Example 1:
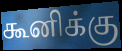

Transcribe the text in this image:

கூனிக்கு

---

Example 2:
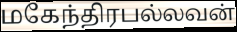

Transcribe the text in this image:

மகேந்திரபல்லவன்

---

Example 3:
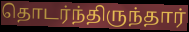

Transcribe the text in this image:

தொடர்ந்திருந்தார்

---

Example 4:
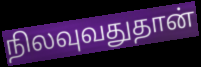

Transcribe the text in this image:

நிலவுவதுதான்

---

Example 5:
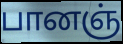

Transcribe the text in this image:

பானஞ்